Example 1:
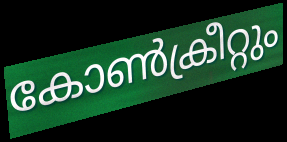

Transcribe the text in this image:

കോൺക്രീറ്റും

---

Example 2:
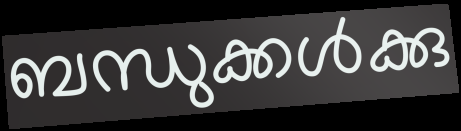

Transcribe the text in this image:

ബന്ധുക്കൾക്കു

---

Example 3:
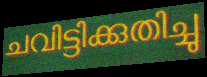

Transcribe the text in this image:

ചവിട്ടിക്കുതിച്ചു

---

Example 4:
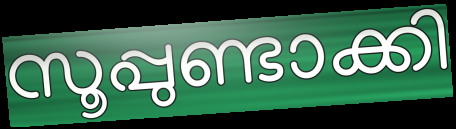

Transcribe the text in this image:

സൂപ്പുണ്ടാക്കി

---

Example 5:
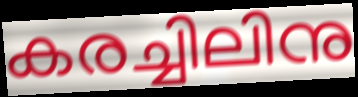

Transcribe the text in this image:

കരച്ചിലിനു